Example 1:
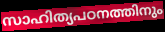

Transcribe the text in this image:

സാഹിത്യപഠനത്തിനും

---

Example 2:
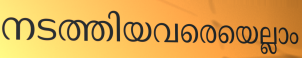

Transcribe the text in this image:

നടത്തിയവരെയെല്ലാം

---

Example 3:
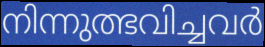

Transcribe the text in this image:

നിന്നുത്ഭവിച്ചവർ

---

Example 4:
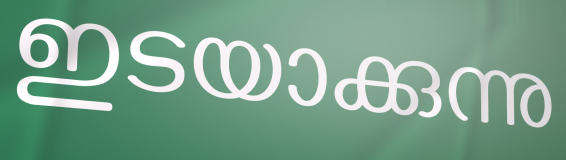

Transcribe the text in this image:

ഇടയാക്കുന്നു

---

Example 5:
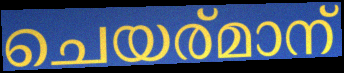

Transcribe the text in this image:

ചെയര്മാന്